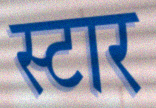
स्टार